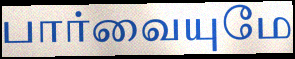
பார்வையுமே